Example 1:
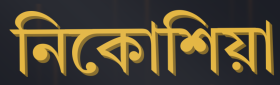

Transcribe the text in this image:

নিকোশিয়া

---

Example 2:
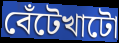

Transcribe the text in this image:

বেঁটেখাটো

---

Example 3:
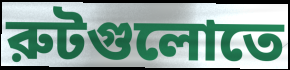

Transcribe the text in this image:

রুটগুলোতে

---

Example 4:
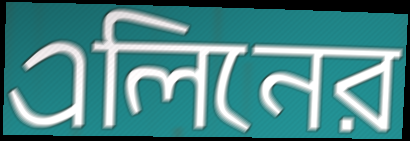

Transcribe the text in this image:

এলিনের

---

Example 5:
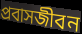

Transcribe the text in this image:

প্রবাসজীবন